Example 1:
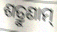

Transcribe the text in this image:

ଶତ୍ରୁଣାମ୍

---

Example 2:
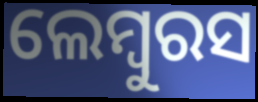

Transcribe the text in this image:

ଲେମ୍ବୁରସ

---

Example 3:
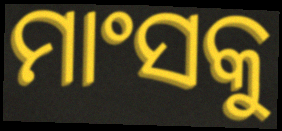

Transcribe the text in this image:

ମାଂସକୁ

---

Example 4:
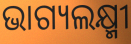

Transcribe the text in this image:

ଭାଗ୍ୟଲକ୍ଷ୍ମୀ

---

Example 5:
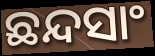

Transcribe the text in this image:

ଛନ୍ଦସାଂ